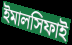
ইমালসিফাই